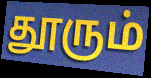
தூரும்